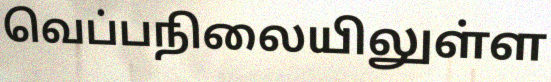
வெப்பநிலையிலுள்ள